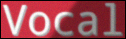
Vocal